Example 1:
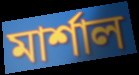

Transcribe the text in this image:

মাৰ্শাল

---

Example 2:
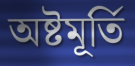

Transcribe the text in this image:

অষ্টমূৰ্তি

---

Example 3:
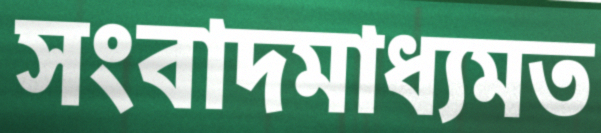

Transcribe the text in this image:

সংবাদমাধ্যমত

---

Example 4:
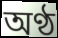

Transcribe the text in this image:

অণ্ঠ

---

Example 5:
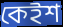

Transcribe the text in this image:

কেইশ